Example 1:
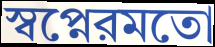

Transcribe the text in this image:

স্বপ্নেরমতো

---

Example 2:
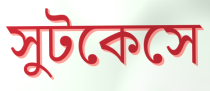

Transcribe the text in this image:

সুটকেসে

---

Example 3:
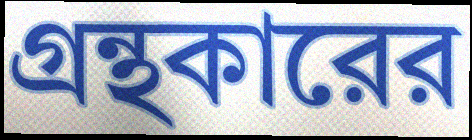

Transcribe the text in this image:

গ্রন্থকারের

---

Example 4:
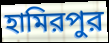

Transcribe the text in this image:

হামিরপুর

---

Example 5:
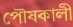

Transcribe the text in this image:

পৌষকালী